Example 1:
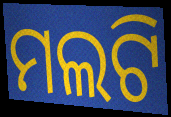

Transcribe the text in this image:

ମଲଟି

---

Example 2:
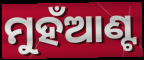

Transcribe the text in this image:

ମୁହଁଆଣ୍ଟ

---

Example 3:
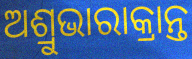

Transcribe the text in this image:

ଅଶ୍ରୁଭାରାକ୍ରାନ୍ତ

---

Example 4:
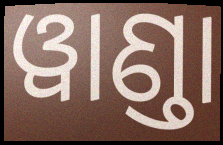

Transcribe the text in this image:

ୱାଣ୍ଡା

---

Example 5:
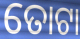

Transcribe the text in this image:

ତୋଟା